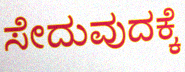
ಸೇದುವುದಕ್ಕೆ